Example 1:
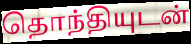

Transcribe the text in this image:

தொந்தியுடன்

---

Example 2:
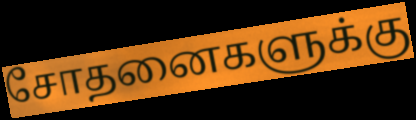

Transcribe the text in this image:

சோதனைகளுக்கு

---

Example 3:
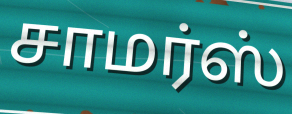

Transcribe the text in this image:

சாமர்ஸ்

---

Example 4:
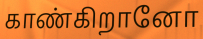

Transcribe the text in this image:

காண்கிறானோ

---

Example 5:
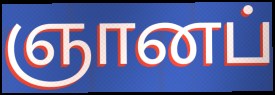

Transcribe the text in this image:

ஞானப்